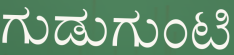
ಗುಡುಗುಂಟಿ